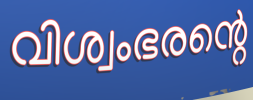
വിശ്വംഭരന്റെ